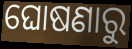
ଘୋଷଣାରୁ